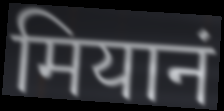
मियानं